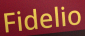
Fidelio